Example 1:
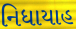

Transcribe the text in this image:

નિધાયાહ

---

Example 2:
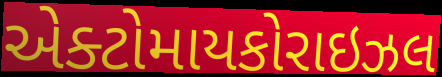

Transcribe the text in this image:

એક્ટોમાયકોરાઇઝલ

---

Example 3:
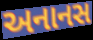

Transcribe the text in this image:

અનાનસ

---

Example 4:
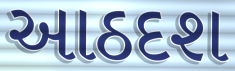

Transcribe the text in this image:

આઠદશ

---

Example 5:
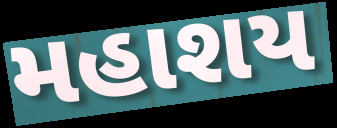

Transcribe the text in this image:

મહાશય